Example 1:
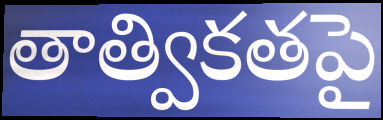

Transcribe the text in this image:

తాత్వికతపై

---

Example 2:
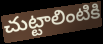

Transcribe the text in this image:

చుట్టాలింటికి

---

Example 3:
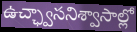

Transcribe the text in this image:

ఉచ్ఛ్వాసనిశ్వాసాల్లో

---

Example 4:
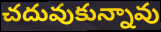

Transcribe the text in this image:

చదువుకున్నావు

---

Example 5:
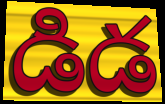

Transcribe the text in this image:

డిడ